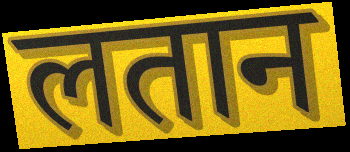
लतान